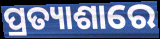
ପ୍ରତ୍ୟାଶାରେ